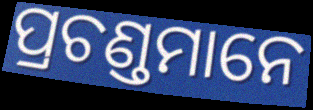
ପ୍ରଚଣ୍ଡମାନେ